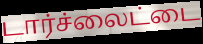
டார்ச்லைட்டை